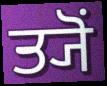
ਤ੍ਯੋਂ